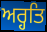
ਅਰ੍ਹਤਿ